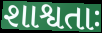
શાશ્વતાઃ